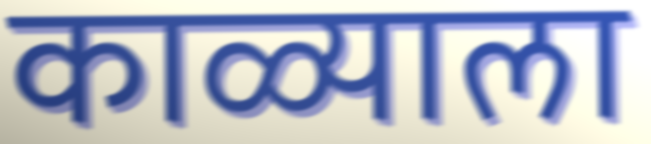
काळ्याला